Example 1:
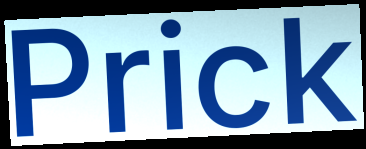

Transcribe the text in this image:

Prick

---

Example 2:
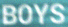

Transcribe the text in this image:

BOYS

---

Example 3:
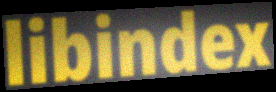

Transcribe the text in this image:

libindex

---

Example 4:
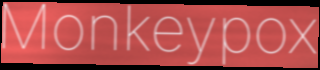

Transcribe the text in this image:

Monkeypox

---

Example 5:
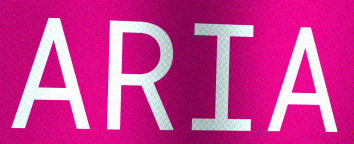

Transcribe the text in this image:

ARIA